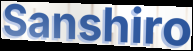
Sanshiro